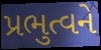
પ્રભુત્વને